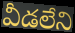
వీడలేని